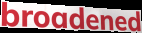
broadened